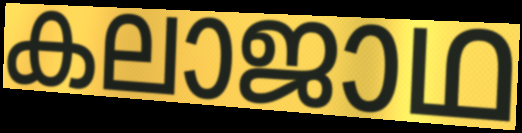
കലാജാഥ